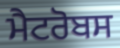
ਮੈਟਰੋਬਸ